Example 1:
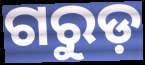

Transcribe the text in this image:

ଗରୁଡ଼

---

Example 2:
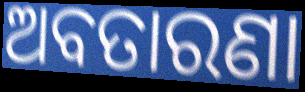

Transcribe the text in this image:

ଅବତାରଣା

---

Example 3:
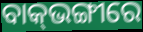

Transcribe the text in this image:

ବାକ୍‍ଭଙ୍ଗୀରେ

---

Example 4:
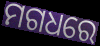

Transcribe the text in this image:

ମଗଧରେ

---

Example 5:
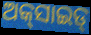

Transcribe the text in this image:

ଅକ୍‌ସାଇଡ୍